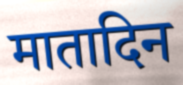
मातादिन